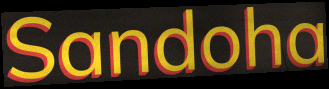
Sandoha